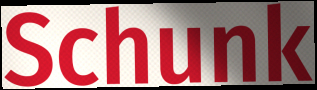
Schunk